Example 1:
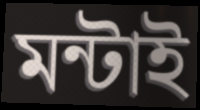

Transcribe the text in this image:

মন্টাই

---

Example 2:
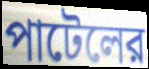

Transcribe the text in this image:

পাটেলের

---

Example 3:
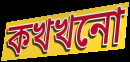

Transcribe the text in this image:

কখখনো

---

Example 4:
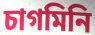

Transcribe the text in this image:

চাগমিনি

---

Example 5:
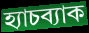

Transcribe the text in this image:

হ্যাচব্যাক